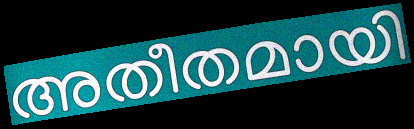
അതീതമായി